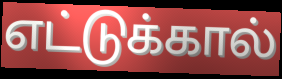
எட்டுக்கால்